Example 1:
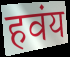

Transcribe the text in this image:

हवंय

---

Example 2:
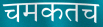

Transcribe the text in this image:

चमकतच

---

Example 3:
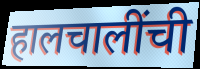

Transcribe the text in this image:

हालचालींची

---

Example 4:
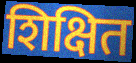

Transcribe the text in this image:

शिक्षित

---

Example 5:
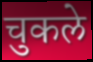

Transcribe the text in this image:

चुकले